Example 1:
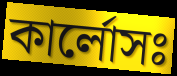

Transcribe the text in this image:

কার্লোসঃ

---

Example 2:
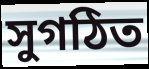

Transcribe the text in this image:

সুগঠিত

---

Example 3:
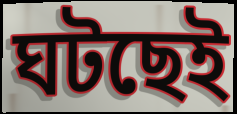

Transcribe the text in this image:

ঘটছেই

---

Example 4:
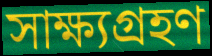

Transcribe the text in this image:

সাক্ষ্যগ্রহণ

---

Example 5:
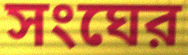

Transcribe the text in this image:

সংঘের